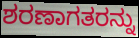
ಶರಣಾಗತರನ್ನು